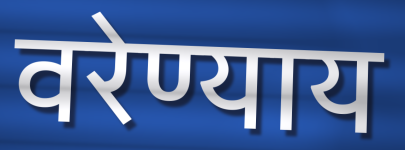
वरेण्याय